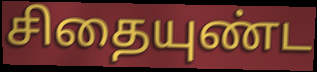
சிதையுண்ட